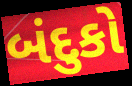
બંદુકો